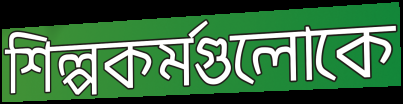
শিল্পকর্মগুলোকে